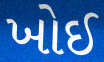
ખોઈ